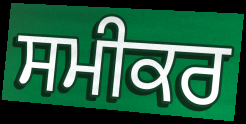
ਸਮੀਕਰ